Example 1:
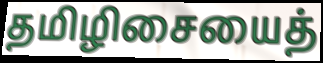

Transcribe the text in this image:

தமிழிசையைத்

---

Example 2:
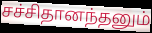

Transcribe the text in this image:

சச்சிதானந்தனும்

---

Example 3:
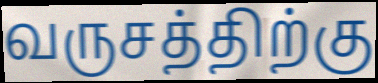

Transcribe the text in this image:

வருசத்திற்கு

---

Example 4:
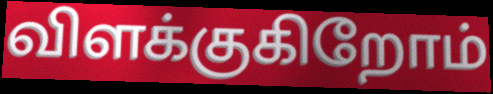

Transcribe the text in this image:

விளக்குகிறோம்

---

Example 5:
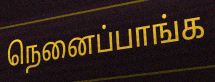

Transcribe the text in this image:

நெனைப்பாங்க